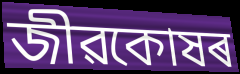
জীৱকোষৰ